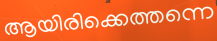
ആയിരിക്കെത്തന്നെ